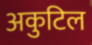
अकुटिल